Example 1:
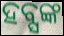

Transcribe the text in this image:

ହବ୍ସଙ୍କ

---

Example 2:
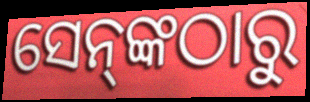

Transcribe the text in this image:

ସେନ୍‌ଙ୍କଠାରୁ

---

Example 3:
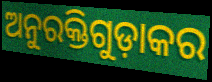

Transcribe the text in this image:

ଅନୁରକ୍ତିଗୁଡ଼ାକର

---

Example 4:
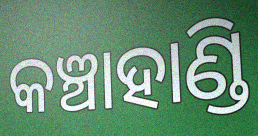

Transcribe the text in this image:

କଞ୍ଚାହାଣ୍ଡି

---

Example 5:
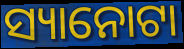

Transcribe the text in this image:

ସ୍ୟାନୋଟା